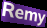
Remy